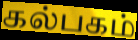
கல்பகம்